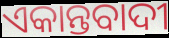
ଏକାନ୍ତବାଦୀ